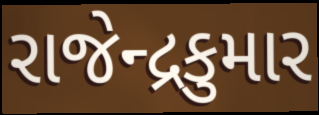
રાજેન્દ્રકુમાર